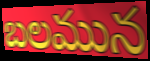
బలమున